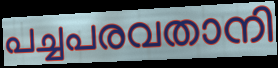
പച്ചപരവതാനി